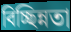
বিচ্ছিন্নতা